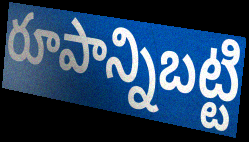
రూపాన్నిబట్టి